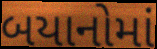
બયાનોમાં